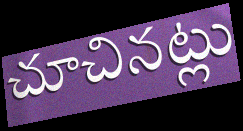
చూచినట్లు